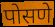
पोसणे